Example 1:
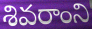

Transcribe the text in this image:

శివరాంని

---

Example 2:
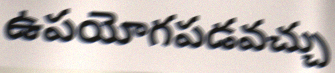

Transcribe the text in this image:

ఉపయోగపడవచ్చు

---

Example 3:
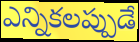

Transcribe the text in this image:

ఎన్నికలప్పుడే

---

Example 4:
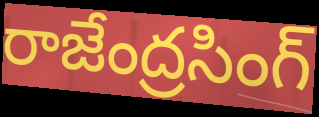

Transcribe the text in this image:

రాజేంద్రసింగ్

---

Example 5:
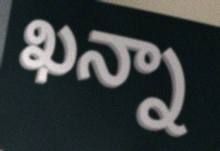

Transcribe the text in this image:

ఖన్నా